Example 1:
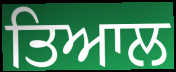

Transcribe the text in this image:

ਤਿਆਲ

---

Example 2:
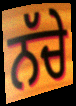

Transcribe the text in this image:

ਨੱਚੇ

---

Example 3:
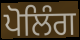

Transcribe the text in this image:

ਪੋਲਿੰਗ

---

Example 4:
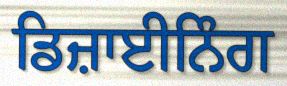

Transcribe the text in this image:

ਡਿਜ਼ਾਈਨਿੰਗ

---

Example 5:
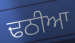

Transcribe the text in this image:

ਢਠੀਆ